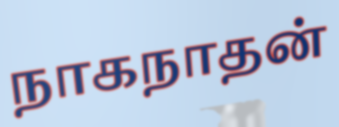
நாகநாதன்